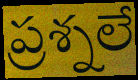
ప్రశ్నలే